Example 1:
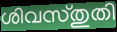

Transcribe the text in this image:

ശിവസ്തുതി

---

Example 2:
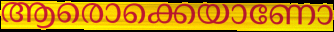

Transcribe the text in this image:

ആരൊക്കെയാണോ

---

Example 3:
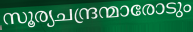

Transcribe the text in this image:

സൂര്യചന്ദ്രന്മാരോടും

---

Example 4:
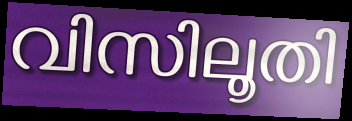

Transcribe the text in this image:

വിസിലൂതി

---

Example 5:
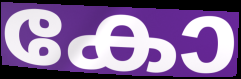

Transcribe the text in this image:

കോ